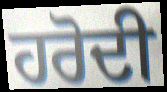
ਹਰੋਦੀ